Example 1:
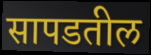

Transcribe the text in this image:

सापडतील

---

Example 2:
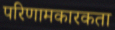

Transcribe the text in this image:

परिणामकारकता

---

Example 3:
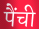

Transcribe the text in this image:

पैंची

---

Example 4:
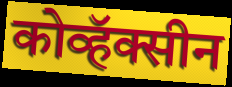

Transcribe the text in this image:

कोव्हॅक्सीन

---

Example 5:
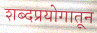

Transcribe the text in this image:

शब्दप्रयोगातून